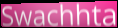
Swachhta